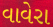
વાવેરા